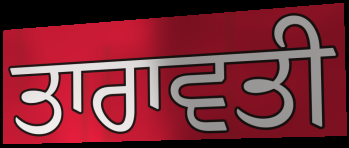
ਤਾਰਾਵਤੀ